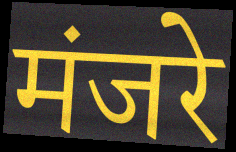
मंजरे